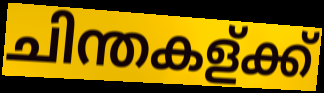
ചിന്തകള്ക്ക്